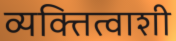
व्यक्तित्वाशी